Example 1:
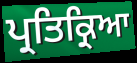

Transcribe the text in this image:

ਪ੍ਰਤਿਕ੍ਰਿਆ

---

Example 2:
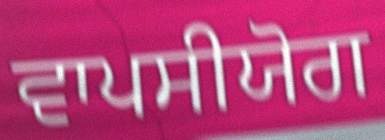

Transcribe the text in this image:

ਵਾਪਸੀਯੋਗ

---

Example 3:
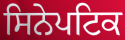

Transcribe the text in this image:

ਸਿਨੇਪਟਿਕ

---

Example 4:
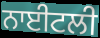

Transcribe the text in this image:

ਨਾਈਟਲੀ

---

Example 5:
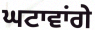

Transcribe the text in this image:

ਘਟਾਵਾਂਗੇ